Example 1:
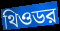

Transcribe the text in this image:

থিওডর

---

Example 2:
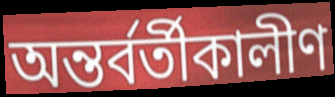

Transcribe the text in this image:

অন্তর্বর্তীকালীণ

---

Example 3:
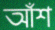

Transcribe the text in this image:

আঁশ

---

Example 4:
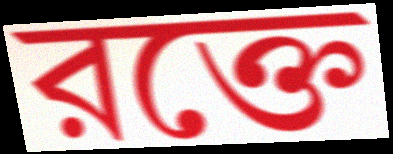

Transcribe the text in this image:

রক্তে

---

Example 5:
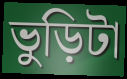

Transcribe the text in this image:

ভুড়িটা